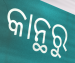
କାନ୍ଥରୁ